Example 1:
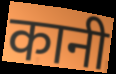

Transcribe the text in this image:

कानी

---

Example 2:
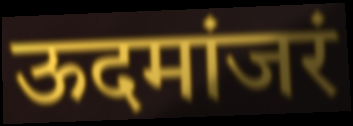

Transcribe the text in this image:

ऊदमांजरं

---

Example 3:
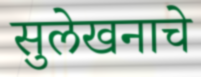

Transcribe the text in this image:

सुलेखनाचे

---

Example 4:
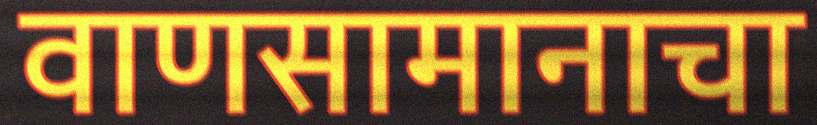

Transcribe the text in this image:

वाणसामानाचा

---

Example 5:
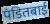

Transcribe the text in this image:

पंडितबाई